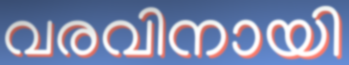
വരവിനായി